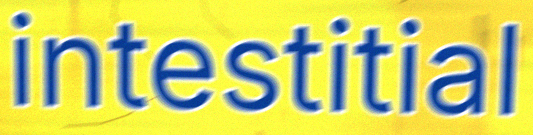
intestitial